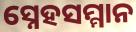
ସ୍ନେହସମ୍ମାନ